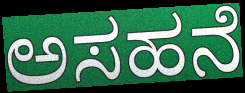
ಅಸಹನೆ